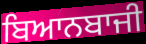
ਬਿਆਨਬਾਜੀ